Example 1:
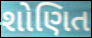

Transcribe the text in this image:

શોણિત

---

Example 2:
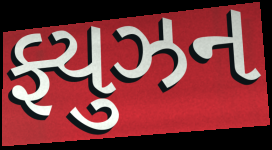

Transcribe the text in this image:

ફ્યુઝન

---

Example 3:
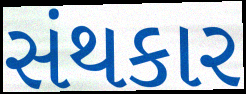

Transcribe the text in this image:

સંથકાર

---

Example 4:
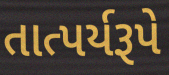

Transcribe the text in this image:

તાત્પર્યરૂપે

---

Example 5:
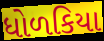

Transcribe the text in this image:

ધોળકિયા